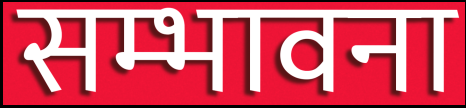
सम्भावना